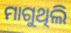
ମାଗୁଥିଲି